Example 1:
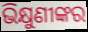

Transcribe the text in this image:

ଭିକ୍ଷୁଣୀଙ୍କର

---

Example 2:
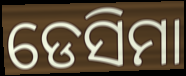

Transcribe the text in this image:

ଡେସିମା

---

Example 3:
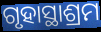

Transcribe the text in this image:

ଗୃହାସ୍ଥାଶ୍ରମ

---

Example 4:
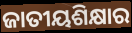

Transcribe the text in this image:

ଜାତୀୟଶିକ୍ଷାର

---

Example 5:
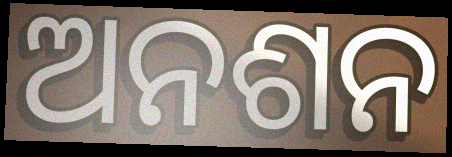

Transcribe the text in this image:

ଅନଶନ